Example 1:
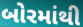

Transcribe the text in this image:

બોરમાંથી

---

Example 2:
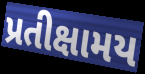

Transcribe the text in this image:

પ્રતીક્ષામય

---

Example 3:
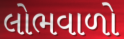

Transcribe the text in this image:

લોભવાળો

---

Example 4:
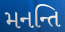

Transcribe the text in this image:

મનન્તિ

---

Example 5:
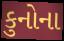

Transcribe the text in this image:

કુનોના